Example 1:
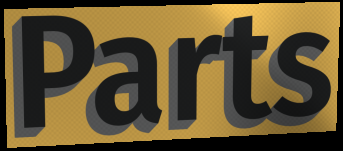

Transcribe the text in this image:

Parts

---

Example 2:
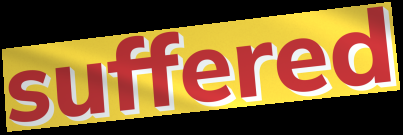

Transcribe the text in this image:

suffered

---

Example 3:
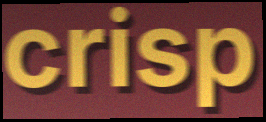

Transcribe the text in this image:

crisp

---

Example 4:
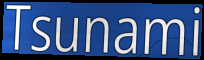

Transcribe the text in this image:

Tsunami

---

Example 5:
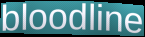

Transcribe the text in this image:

bloodline